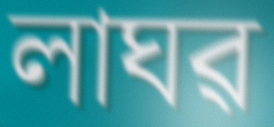
লাঘৱ